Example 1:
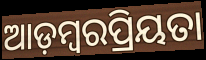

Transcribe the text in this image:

ଆଡ଼ମ୍ବରପ୍ରିୟତା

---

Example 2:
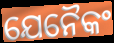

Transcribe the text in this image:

ଯେନୈକଂ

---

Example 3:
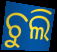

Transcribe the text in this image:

ଚୁଲି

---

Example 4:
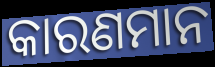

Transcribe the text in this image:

କାରଣମାନ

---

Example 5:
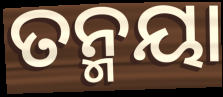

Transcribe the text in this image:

ତନ୍ମୟା